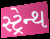
સ્ટ્રેન્થ